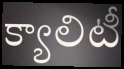
క్యాలిటీ